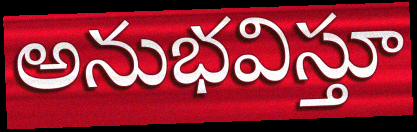
అనుభవిస్తూ